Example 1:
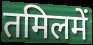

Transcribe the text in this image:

तमिलमें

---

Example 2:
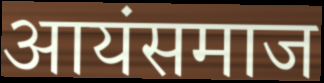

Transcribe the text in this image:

आयंसमाज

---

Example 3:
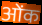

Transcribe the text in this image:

ओंक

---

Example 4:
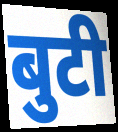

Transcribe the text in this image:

बुटी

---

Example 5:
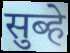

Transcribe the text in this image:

सुब्हे